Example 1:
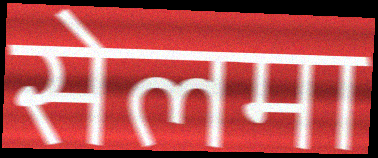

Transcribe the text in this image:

सेलमा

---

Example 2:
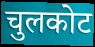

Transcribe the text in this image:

चुलकोट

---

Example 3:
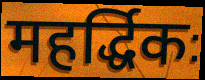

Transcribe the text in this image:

महर्द्धिकः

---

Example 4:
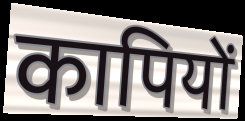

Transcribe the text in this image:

कापियों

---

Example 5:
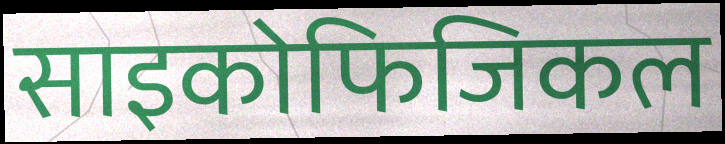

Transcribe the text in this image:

साइकोफिजिकल